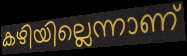
കഴിയില്ലെന്നാണ്